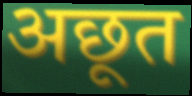
अछूत